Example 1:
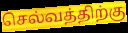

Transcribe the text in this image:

செல்வத்திற்கு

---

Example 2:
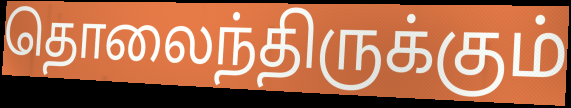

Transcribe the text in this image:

தொலைந்திருக்கும்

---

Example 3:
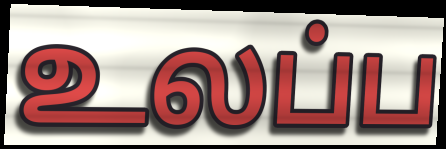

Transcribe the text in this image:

உலப்ப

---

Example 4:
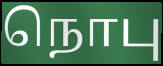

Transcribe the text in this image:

நொபு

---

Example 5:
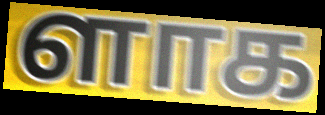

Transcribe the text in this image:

ளாக